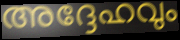
അദ്ദേഹവും